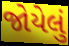
જોયેલું